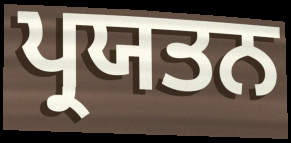
ਪ੍ਰਯਤਨ